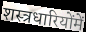
शस्त्रधारियोंमें